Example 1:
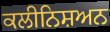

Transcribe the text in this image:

ਕਲੀਨਿਸ਼ਅਨ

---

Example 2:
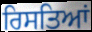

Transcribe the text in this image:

ਰਿਸਤਿਆਂ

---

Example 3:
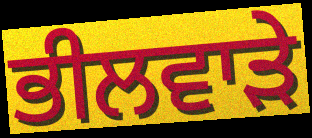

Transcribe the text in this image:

ਭੀਲਵਾੜੇ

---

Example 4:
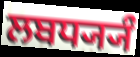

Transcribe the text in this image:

ਲਬਧ੍ਯ੍ਯੰ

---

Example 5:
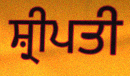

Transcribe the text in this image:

ਸ਼੍ਰੀਪਤੀ